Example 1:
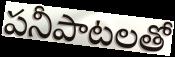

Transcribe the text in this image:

పనీపాటలతో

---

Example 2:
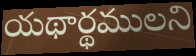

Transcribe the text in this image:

యథార్థములని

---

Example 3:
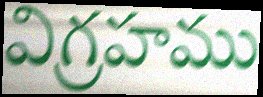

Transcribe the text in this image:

విగ్రహము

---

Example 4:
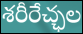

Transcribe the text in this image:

శరీరేచ్ఛల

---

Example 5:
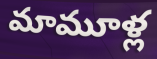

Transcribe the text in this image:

మామూళ్ల